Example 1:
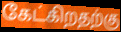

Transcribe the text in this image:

கேட்கிறதற்கு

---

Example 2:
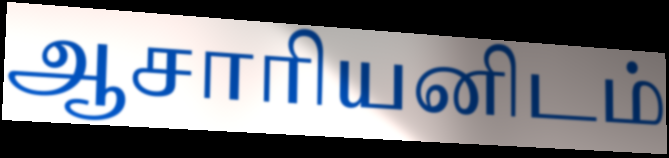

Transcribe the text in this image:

ஆசாரியனிடம்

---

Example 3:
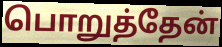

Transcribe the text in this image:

பொறுத்தேன்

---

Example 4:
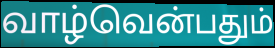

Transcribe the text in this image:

வாழ்வென்பதும்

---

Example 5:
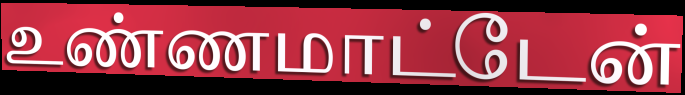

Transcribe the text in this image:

உண்ணமாட்டேன்